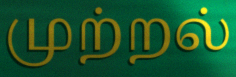
முற்றல்